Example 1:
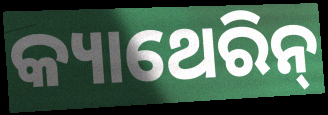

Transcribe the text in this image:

କ୍ୟାଥେରିନ୍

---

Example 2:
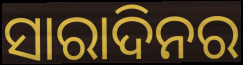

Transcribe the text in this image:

ସାରାଦିନର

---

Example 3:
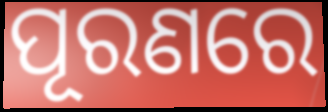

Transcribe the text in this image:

ପୂରଣରେ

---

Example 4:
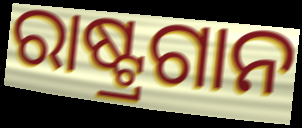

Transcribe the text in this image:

ରାଷ୍ଟ୍ରଗାନ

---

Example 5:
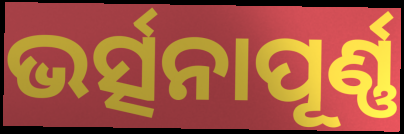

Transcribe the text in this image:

ଭର୍ତ୍ସନାପୂର୍ଣ୍ଣ